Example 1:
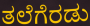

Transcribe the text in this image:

ತಲೆಗೆರಡು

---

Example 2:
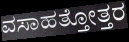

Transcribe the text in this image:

ವಸಾಹತ್ತೋತ್ತರ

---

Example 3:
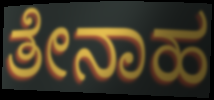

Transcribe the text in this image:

ತೇನಾಹ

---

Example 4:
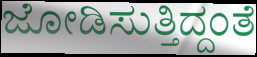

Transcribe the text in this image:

ಜೋಡಿಸುತ್ತಿದ್ದಂತೆ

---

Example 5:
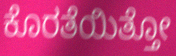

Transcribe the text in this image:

ಕೊರತೆಯಿತ್ತೋ